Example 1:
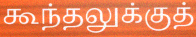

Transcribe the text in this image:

கூந்தலுக்குத்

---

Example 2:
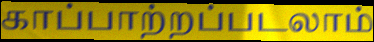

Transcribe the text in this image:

காப்பாற்றப்படலாம்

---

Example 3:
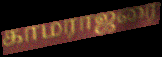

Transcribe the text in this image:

காமராஜரை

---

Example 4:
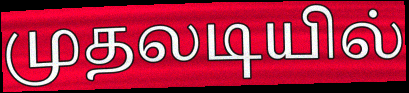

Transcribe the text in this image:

முதலடியில்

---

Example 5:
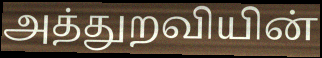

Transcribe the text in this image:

அத்துறவியின்